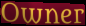
Owner